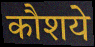
कौशये